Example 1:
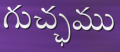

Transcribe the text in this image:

గుచ్ఛము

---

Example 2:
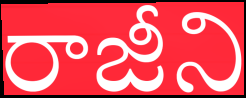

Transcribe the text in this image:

రాజీని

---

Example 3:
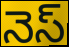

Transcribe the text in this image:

నెస్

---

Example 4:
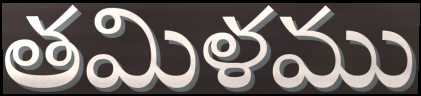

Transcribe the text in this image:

తమిళము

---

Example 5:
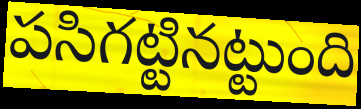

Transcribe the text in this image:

పసిగట్టినట్టుంది